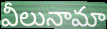
వీలునామా